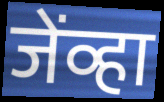
जेंव्हा